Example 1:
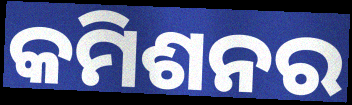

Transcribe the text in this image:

କମିଶନର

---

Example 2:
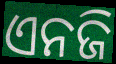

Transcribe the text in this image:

ଏନଜି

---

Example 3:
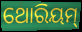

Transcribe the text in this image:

ଥୋରିୟମ୍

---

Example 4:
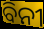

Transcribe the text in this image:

ବିନୀ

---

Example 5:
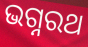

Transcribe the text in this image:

ଭଗ୍ନରଥ